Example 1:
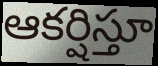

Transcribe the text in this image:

ఆకర్షిస్తూ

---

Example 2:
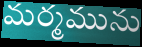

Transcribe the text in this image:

మర్మమును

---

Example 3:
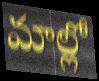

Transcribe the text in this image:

మాల్లో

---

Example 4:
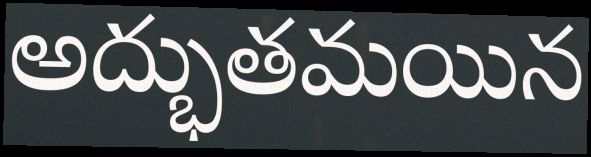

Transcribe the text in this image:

అద్భుతమయిన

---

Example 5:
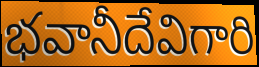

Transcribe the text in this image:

భవానీదేవిగారి